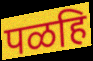
पळहि